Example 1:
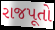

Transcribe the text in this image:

રાજપૂતો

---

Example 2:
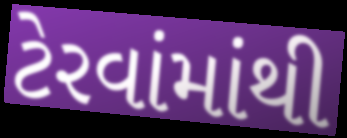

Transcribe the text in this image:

ટેરવાંમાંથી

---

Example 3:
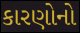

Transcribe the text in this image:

કારણોનો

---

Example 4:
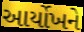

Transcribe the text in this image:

આર્યોખને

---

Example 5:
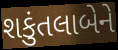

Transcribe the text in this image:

શકુંતલાબેને